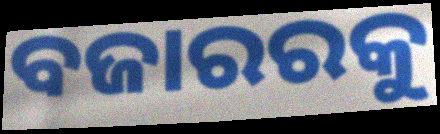
ବଜାରରକୁ